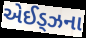
એઈડ્ઝના